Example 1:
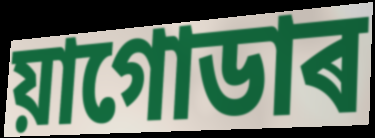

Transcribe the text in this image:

য়াগোডাৰ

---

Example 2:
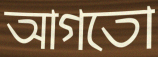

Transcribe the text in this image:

আগতো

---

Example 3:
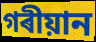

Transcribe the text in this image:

গৰীয়ান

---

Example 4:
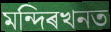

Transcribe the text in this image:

মন্দিৰখনত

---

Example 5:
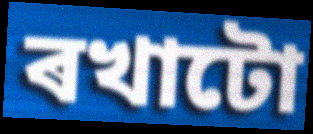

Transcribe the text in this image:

ৰখাটো